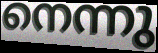
നെന്നു